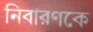
নিবারণকে